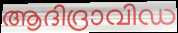
ആദിദ്രാവിഡ